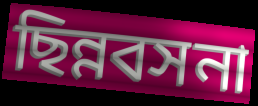
ছিন্নবসনা